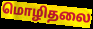
மொழிதலை